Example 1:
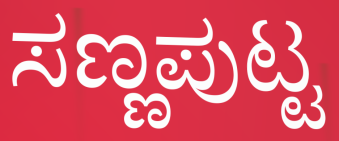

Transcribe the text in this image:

ಸಣ್ಣಪುಟ್ಟ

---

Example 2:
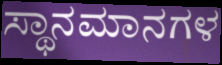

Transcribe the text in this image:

ಸ್ಥಾನಮಾನಗಳ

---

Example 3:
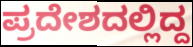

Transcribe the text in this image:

ಪ್ರದೇಶದಲ್ಲಿದ್ದ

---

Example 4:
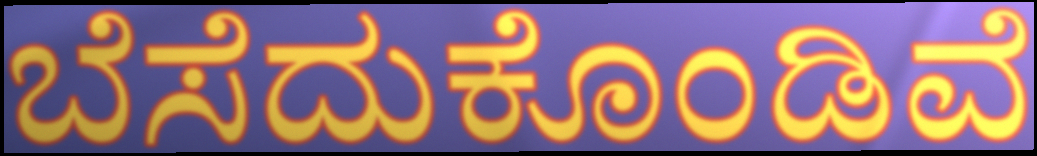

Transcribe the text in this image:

ಬೆಸೆದುಕೊಂಡಿವೆ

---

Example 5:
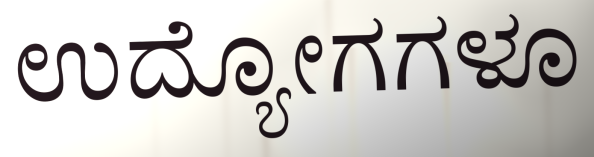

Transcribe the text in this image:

ಉದ್ಯೋಗಗಳೂ